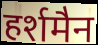
हर्शमैन